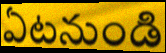
ఏటనుండి